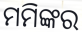
ମମିଙ୍କର